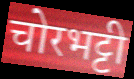
चोरभट्टी